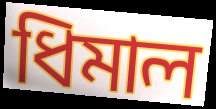
ধিমাল